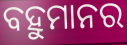
ବହୁମାନର